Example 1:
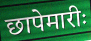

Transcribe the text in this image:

छापेमारीः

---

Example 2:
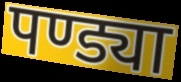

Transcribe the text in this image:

पण्ड्या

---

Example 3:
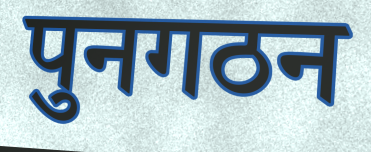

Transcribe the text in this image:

पुनगठन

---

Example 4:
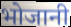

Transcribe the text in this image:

भोजानी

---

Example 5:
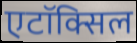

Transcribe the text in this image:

एटॉक्सिल